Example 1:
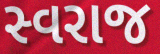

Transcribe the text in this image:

સ્વરાજ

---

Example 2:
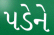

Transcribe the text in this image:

પડેને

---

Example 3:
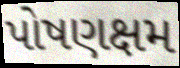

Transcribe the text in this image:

પોષણક્ષમ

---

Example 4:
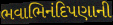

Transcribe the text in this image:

ભવાભિનંદિપણાની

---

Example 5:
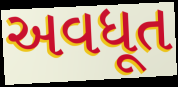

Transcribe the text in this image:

અવધૂત